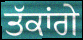
ਤੱਕਾਂਗੇ